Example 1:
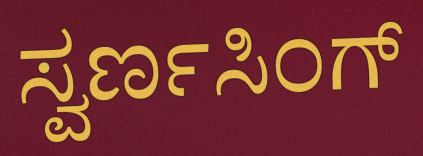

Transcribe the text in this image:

ಸ್ವರ್ಣಸಿಂಗ್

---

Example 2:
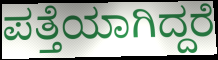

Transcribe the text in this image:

ಪತ್ತೆಯಾಗಿದ್ದರೆ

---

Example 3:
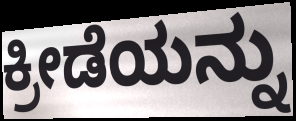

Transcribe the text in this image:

ಕ್ರೀಡೆಯನ್ನು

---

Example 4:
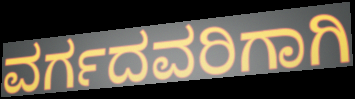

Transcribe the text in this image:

ವರ್ಗದವರಿಗಾಗಿ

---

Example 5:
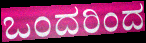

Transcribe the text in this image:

ಒಂದರಿಂದ